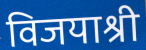
विजयाश्री